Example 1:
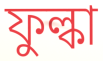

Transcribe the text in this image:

ফুল্কা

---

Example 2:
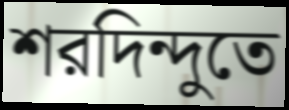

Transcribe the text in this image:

শরদিন্দুতে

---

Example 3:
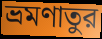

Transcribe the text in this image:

ভ্রমণাতুর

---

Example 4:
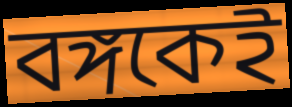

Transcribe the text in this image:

বঙ্গকেই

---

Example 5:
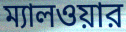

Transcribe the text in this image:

ম্যালওয়ার